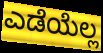
ಎಡೆಯೆಲ್ಲ